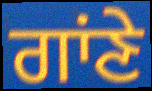
ਗਾਂਣੇ